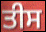
ਤੀਸ